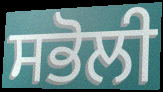
ਸਭੋਲੀ